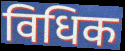
विधिक